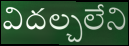
విదల్చలేని